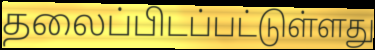
தலைப்பிடப்பட்டுள்ளது